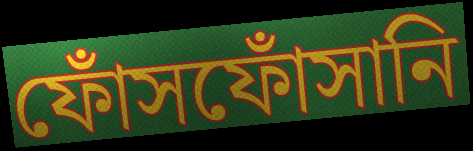
ফোঁসফোঁসানি